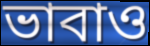
ভাবাও